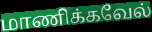
மாணிக்கவேல்